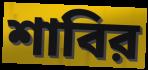
শাবির